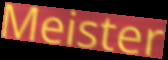
Meister